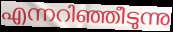
എന്നറിഞ്ഞീടുന്നു